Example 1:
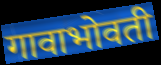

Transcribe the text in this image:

गावाभोवती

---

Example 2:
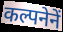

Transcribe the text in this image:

कल्पनेनें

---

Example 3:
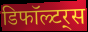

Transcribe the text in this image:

डिफॉल्टर्स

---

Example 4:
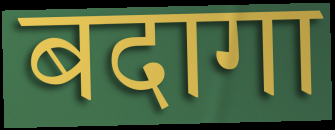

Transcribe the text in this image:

बदागा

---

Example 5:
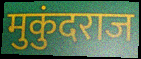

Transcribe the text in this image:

मुकुंदराज